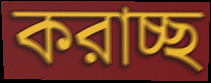
করাচ্ছ